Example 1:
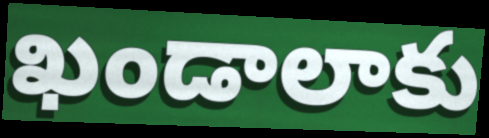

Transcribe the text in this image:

ఖండాలాకు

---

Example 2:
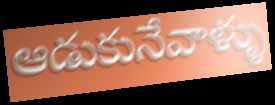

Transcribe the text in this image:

ఆడుకునేవాళ్ళు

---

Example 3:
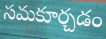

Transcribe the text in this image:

సమకూర్చడం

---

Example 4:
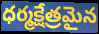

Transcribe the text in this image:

ధర్మక్షేత్రమైన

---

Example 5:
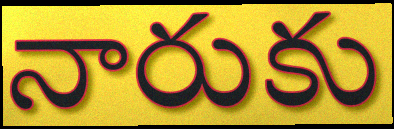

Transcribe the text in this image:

నారుకు